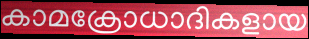
കാമക്രോധാദികളായ